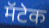
मॅटेक